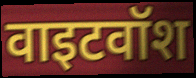
वाइटवॉश